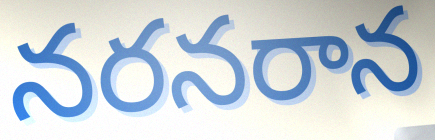
నరనరాన